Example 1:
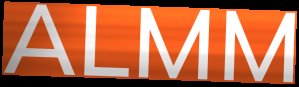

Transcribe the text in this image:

ALMM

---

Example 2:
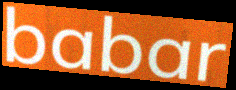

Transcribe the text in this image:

babar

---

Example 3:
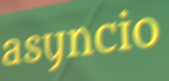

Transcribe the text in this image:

asyncio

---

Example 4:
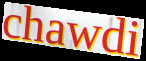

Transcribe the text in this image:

chawdi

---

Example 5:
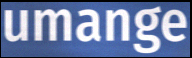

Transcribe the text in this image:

umange